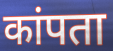
कांपता